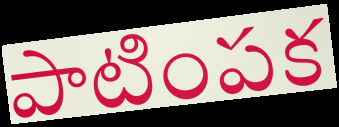
పాటింపక